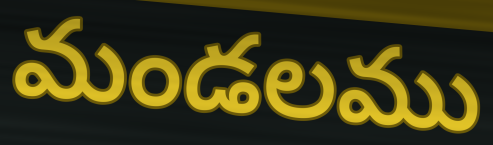
మండలము